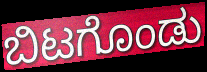
ಬಿಟಗೊಂಡು